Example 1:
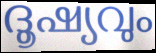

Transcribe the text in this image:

ദൂഷ്യവും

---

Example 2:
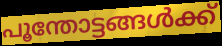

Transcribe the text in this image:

പൂന്തോട്ടങ്ങൾക്ക്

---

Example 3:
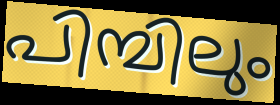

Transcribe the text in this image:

പിമ്പിലും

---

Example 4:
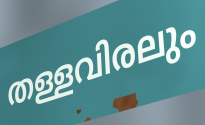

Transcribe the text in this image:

തള്ളവിരലും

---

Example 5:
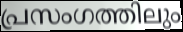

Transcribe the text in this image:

പ്രസംഗത്തിലും